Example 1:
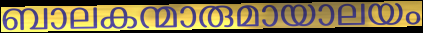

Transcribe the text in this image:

ബാലകന്മാരുമായാലയം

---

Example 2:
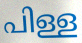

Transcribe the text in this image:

പിള്ള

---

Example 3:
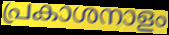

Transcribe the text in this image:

പ്രകാശനാളം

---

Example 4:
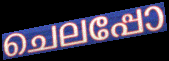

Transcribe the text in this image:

ചെലപ്പോ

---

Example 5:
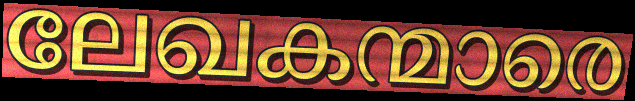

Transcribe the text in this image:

ലേഖകന്മാരെ